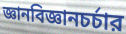
জ্ঞানবিজ্ঞানচর্চার